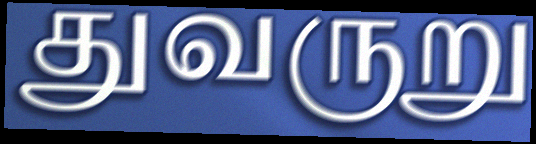
துவருறு